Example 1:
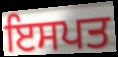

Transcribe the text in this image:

ਇਸਪਤ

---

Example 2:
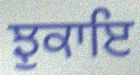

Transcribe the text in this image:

ਝੁਕਾਇ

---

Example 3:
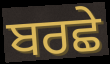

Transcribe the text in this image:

ਬਰਛੇ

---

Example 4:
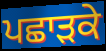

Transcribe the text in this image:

ਪਛਾੜਕੇ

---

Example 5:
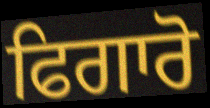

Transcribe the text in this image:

ਫਿਗਾਰੋ